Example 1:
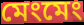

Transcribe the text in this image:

মেংমেং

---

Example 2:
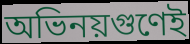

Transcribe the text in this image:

অভিনয়গুণেই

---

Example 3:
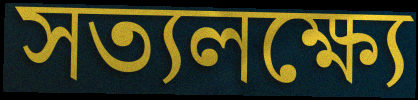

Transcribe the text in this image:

সত্যলক্ষ্যে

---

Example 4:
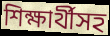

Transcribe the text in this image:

শিক্ষার্থীসহ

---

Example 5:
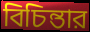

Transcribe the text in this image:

বিচিন্তার